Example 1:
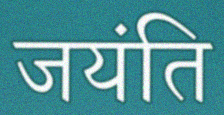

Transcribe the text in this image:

जयंति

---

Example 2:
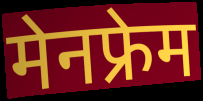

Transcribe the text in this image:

मेनफ्रेम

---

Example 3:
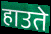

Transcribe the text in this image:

हाउते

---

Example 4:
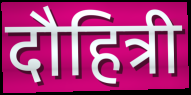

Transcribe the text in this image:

दौहित्री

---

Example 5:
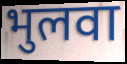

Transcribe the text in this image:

भुलवा